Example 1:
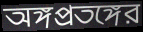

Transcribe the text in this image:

অঙ্গপ্রতঙ্গের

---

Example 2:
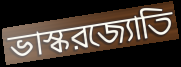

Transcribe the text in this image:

ভাস্করজ্যোতি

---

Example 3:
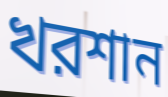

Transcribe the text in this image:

খরশান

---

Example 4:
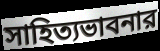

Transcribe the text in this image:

সাহিত্যভাবনার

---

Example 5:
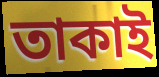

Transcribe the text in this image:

তাকাই